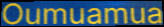
Oumuamua